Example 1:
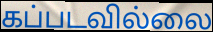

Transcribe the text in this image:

கப்படவில்லை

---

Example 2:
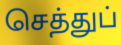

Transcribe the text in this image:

செத்துப்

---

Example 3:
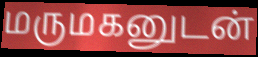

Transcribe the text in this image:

மருமகனுடன்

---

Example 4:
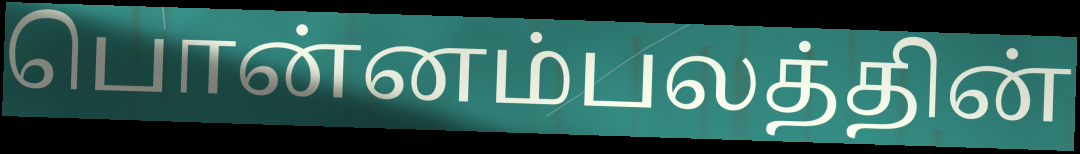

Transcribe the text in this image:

பொன்னம்பலத்தின்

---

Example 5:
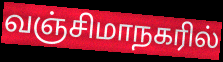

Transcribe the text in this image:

வஞ்சிமாநகரில்